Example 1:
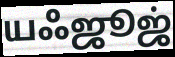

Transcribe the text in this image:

யஃஜூஜ்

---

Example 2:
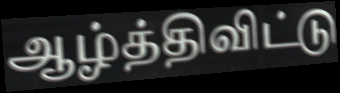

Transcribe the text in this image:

ஆழ்த்திவிட்டு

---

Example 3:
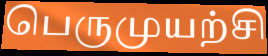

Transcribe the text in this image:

பெருமுயற்சி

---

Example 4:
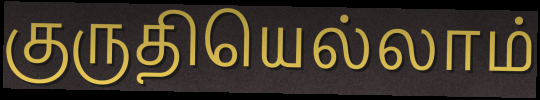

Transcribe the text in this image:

குருதியெல்லாம்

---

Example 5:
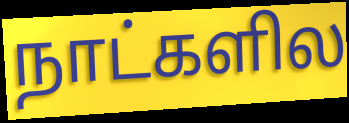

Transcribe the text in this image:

நாட்களில